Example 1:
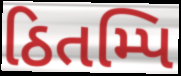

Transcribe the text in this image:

ઠિતમ્પિ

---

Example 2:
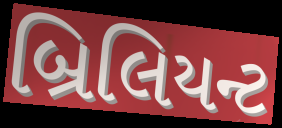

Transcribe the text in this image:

બ્રિલિયન્ટ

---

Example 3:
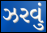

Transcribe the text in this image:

ઝરવું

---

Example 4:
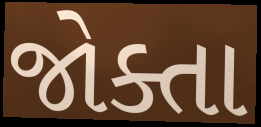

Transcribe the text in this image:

જોક્તા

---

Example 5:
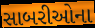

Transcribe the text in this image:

સાબરીઓના